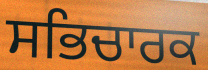
ਸਭਿਚਾਰਕ